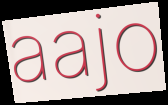
aajo